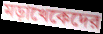
মড়াখেকেদের